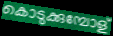
കൊടുക്കുമ്പോള്